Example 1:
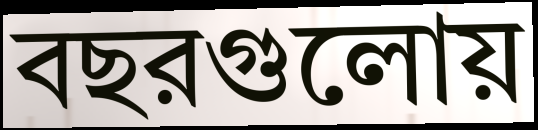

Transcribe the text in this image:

বছরগুলোয়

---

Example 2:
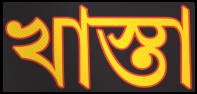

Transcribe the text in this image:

খাস্তা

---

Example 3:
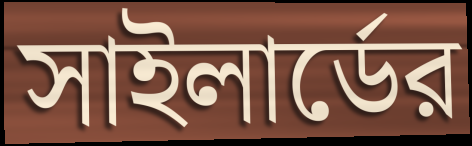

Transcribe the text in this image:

সাইলার্ডের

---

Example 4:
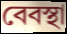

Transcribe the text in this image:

বেবস্থা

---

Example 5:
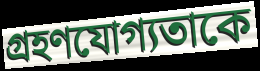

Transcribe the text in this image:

গ্রহণযোগ্যতাকে